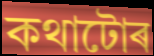
কথাটোৰ